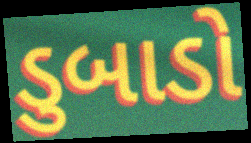
ડુબાડો